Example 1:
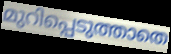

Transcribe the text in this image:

മുറിപ്പെടുത്താതെ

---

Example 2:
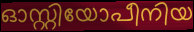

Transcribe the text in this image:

ഓസ്റ്റിയോപീനിയ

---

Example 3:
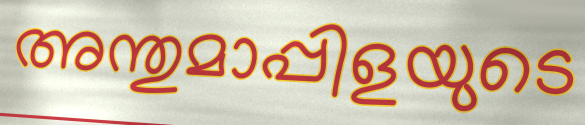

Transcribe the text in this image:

അന്തുമാപ്പിളയുടെ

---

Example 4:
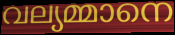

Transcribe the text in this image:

വല്യമ്മാനെ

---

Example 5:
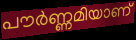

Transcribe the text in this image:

പൗർണ്ണമിയാണ്